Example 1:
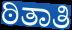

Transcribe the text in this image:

ಠಿತಾತಿ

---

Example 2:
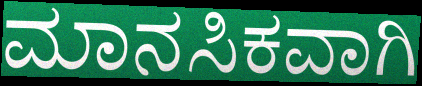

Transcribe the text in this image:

ಮಾನಸಿಕವಾಗಿ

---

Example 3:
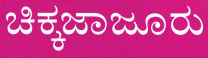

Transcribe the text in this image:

ಚಿಕ್ಕಜಾಜೂರು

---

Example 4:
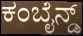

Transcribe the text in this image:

ಕಂಬೈನ್ಡ್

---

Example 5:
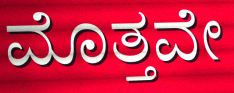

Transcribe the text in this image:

ಮೊತ್ತವೇ